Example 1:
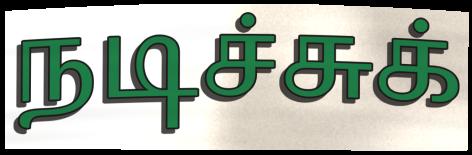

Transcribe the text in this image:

நடிச்சுக்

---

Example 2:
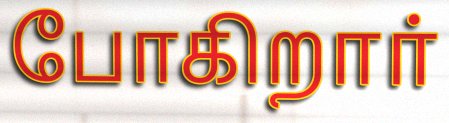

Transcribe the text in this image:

போகிறார்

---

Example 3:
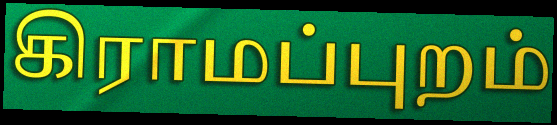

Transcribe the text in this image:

கிராமப்புறம்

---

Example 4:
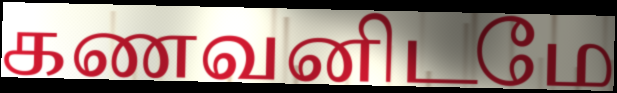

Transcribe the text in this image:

கணவனிடமே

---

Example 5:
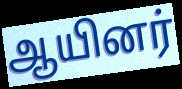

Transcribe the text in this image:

ஆயினர்